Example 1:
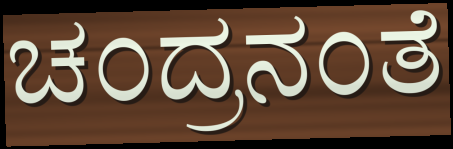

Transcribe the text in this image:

ಚಂದ್ರನಂತೆ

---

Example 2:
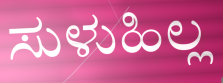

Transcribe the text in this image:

ಸುಳುಹಿಲ್ಲ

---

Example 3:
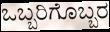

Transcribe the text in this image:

ಒಬ್ಬರಿಗೊಬ್ಬರ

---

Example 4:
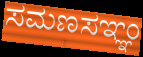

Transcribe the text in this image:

ಸಮಣಸಞ್ಞಂ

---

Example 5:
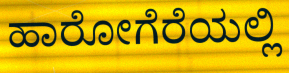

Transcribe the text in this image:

ಹಾರೋಗೆರೆಯಲ್ಲಿ